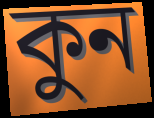
কুন